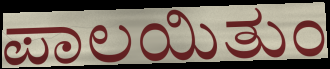
ಪಾಲಯಿತುಂ